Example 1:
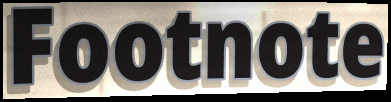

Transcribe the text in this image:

Footnote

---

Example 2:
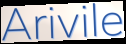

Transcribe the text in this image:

Arivile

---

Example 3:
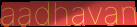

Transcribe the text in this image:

aadhavan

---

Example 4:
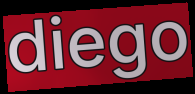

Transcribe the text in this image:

diego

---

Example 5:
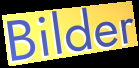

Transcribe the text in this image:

Bilder